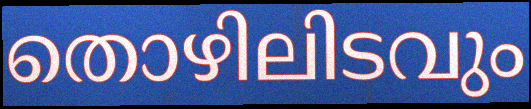
തൊഴിലിടവും